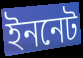
ইননেট